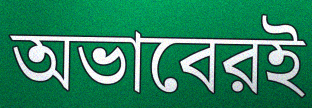
অভাবেরই